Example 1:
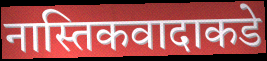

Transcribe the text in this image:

नास्तिकवादाकडे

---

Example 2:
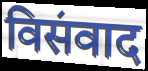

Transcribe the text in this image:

विसंवाद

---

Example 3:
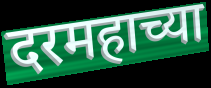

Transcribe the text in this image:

दरमहाच्या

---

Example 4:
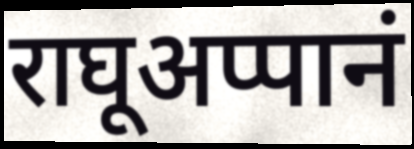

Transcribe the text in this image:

राघूअप्पानं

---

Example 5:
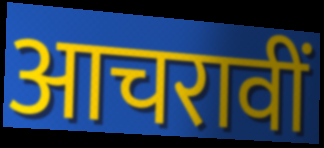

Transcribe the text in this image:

आचरावीं